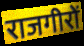
राजगीरों